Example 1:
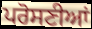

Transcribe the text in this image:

ਪਰੋਸਣੀਆਂ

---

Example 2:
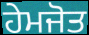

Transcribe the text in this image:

ਹੇਮਜੋਤ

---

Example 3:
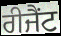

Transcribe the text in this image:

ਰੀਜੈਂਟ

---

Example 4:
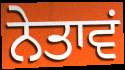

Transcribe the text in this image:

ਨੇਤਾਵਂ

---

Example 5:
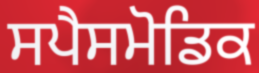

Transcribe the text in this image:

ਸਪੈਸਮੋਡਿਕ